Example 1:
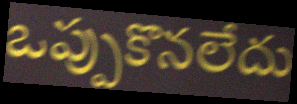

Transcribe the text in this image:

ఒప్పుకొనలేదు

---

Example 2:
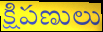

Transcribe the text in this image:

క్షిపణులు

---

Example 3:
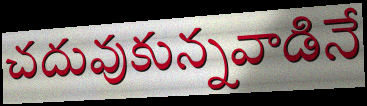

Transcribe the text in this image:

చదువుకున్నవాడినే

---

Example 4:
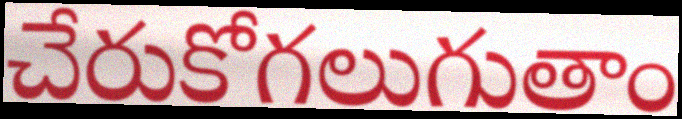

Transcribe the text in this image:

చేరుకోగలుగుతాం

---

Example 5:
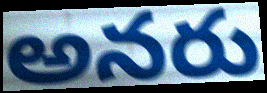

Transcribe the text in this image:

అనరు